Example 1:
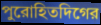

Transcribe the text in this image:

পুরোহিতদিগের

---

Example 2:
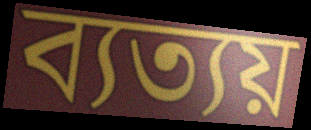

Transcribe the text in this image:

ব্যত্যয়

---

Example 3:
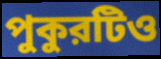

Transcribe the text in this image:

পুকুরটিও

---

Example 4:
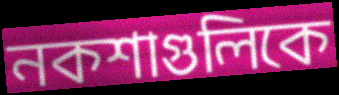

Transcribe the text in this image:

নকশাগুলিকে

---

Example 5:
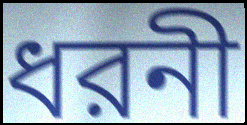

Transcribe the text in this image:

ধরনী